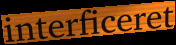
interficeret